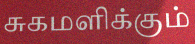
சுகமளிக்கும்